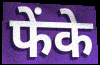
फेंके